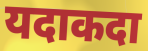
यदाकदा